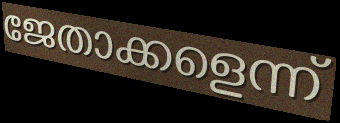
ജേതാക്കളെന്ന്